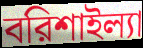
বরিশাইল্যা